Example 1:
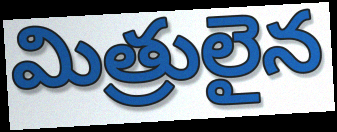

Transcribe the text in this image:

మిత్రులైన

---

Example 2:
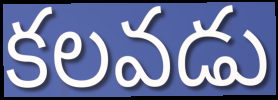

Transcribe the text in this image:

కలవడు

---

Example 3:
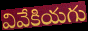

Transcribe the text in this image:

వివేకియగు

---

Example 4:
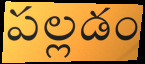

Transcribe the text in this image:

పల్లడం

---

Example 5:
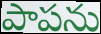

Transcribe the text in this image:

పాపను